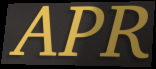
APR